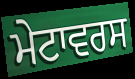
ਮੇਟਾਵਰਸ